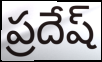
ప్రదేష్